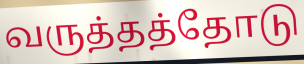
வருத்தத்தோடு